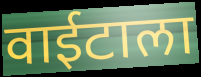
वाईटाला